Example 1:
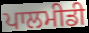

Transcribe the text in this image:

ਪਾਲਮੀਡੀ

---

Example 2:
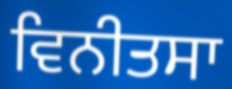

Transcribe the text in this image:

ਵਿਨੀਤਸਾ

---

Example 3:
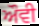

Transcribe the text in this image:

ਔਵੀ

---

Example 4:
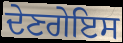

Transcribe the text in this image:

ਦੇਣਗੇਇਸ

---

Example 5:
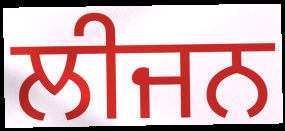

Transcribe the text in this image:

ਲੀਜਨ